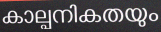
കാല്പനികതയും